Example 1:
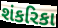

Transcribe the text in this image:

શંકરિકા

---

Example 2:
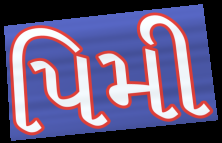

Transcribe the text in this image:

પિમી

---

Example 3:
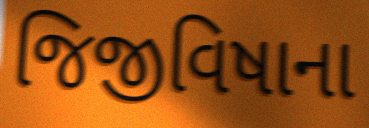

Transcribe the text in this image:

જિજીવિષાના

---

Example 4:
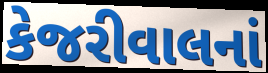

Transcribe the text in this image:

કેજરીવાલનાં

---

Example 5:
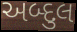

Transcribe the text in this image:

અબ્દુલ